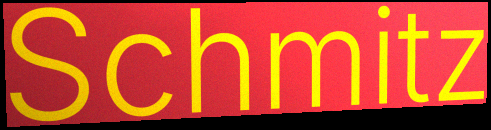
Schmitz